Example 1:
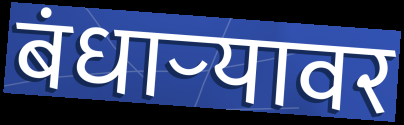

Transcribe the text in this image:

बंधाऱ्यावर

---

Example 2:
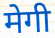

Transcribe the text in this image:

मेगी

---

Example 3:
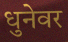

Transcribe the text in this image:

धुनेवर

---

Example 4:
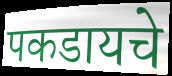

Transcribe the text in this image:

पकडायचे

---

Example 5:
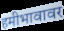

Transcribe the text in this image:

हमीभावावर